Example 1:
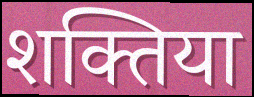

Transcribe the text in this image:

शक्तिया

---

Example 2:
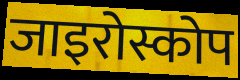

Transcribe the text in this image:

जाइरोस्कोप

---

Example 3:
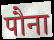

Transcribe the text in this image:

पौना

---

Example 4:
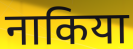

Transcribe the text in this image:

नाकिया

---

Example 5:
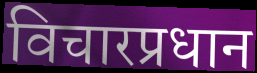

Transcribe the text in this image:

विचारप्रधान